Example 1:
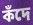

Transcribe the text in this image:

কঁদে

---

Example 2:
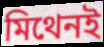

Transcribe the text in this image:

মিথেনই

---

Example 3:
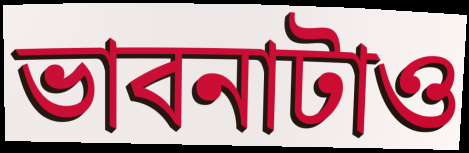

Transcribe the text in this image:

ভাবনাটাও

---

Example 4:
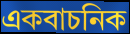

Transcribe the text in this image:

একবাচনিক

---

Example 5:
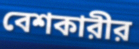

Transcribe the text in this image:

বেশকারীর